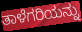
ತಾಳೆಗರಿಯನ್ನು